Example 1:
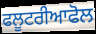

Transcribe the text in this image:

ਫਲੂਟਰੀਆਫੋਲ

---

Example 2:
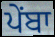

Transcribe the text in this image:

ਪੇਂਬਾ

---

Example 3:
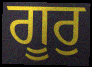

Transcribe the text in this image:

ਗੂਰੁ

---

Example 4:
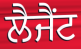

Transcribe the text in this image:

ਲੈਜੈਂਟ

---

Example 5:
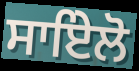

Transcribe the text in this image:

ਸਾਇੇਲੋ